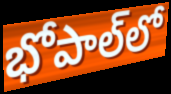
భోపాల్‌లో